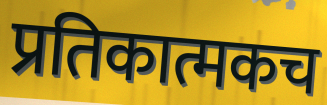
प्रतिकात्मकच